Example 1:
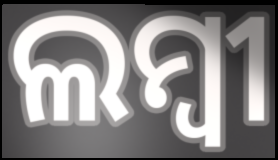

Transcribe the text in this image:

ଲମ୍ବୀ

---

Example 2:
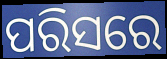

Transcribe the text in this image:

ପରିସରେ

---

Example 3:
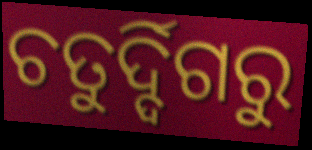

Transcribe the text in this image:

ଚତୁର୍ଦ୍ଦିଗରୁ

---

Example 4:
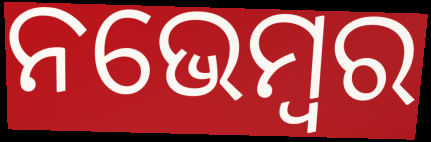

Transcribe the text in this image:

ନଭେମ୍ବର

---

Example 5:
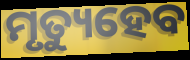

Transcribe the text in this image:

ମୃତ୍ୟୁହେବ